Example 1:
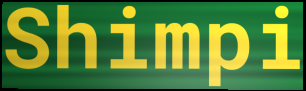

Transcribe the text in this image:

Shimpi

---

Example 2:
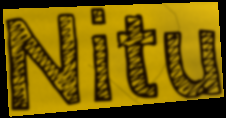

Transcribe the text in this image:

Nitu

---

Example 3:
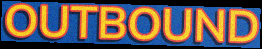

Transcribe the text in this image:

OUTBOUND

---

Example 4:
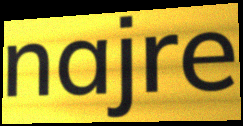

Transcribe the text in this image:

najre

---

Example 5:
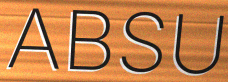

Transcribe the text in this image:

ABSU